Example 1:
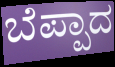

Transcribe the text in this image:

ಬೆಪ್ಪಾದ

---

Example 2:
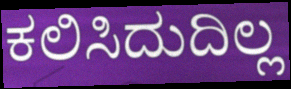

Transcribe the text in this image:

ಕಲಿಸಿದುದಿಲ್ಲ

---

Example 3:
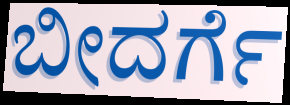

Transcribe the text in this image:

ಬೀದರ್ಗೆ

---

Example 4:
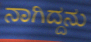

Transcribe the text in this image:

ನಾಗಿದ್ದನು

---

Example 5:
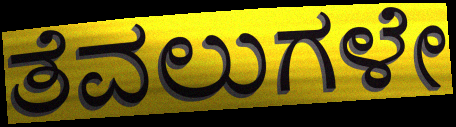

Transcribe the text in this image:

ತೆವಲುಗಳೇ